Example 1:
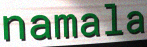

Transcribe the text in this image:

namala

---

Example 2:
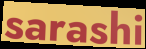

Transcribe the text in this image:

sarashi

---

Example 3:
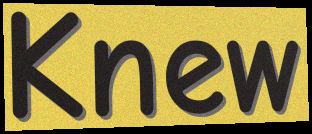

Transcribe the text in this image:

Knew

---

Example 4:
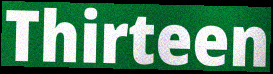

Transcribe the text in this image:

Thirteen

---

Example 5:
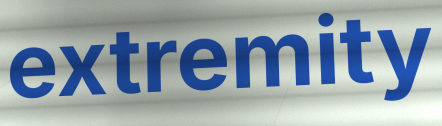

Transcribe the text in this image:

extremity